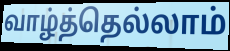
வாழ்த்தெல்லாம்